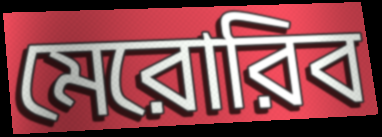
মেরোরিব